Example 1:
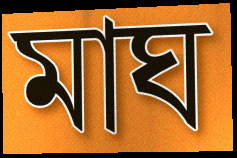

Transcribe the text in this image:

মাঘ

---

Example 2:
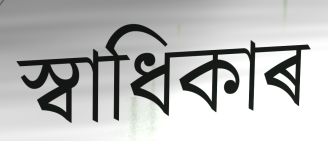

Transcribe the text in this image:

স্বাধিকাৰ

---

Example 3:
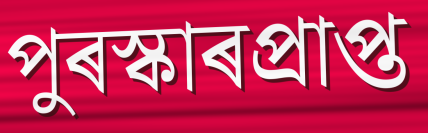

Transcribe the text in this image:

পুৰস্কাৰপ্ৰাপ্ত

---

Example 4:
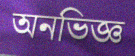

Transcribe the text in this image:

অনভিজ্ঞ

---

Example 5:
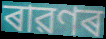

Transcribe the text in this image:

ৰাৱণৰ